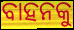
ବାହନକୁ